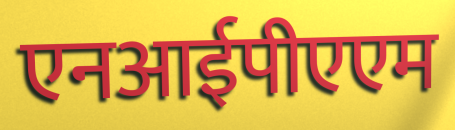
एनआईपीएएम